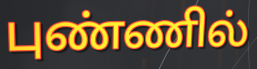
புண்ணில்